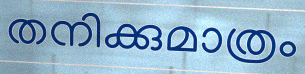
തനിക്കുമാത്രം